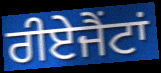
ਰੀਏਜੈਂਟਾਂ